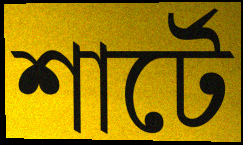
শার্টে